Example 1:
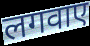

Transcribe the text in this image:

लगवाए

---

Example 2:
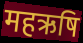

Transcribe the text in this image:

महऋषि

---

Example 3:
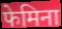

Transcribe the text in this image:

फेमिना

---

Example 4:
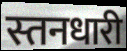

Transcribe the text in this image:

स्‍तनधारी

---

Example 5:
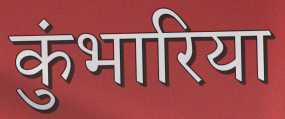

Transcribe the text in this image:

कुंभारिया